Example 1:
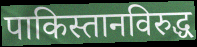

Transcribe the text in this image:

पाकिस्तानविरुद्ध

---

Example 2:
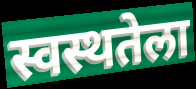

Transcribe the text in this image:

स्वस्थतेला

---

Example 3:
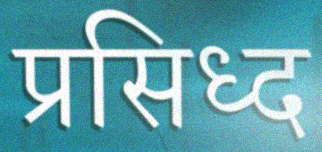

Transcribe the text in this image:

प्रसिध्द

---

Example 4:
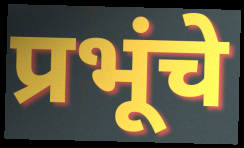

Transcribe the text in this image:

प्रभूंचे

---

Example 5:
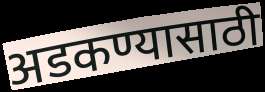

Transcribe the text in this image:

अडकण्यासाठी